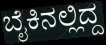
ಬೈಕಿನಲ್ಲಿದ್ದ